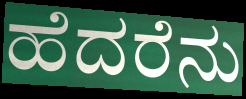
ಹೆದರೆನು